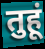
तुहूं